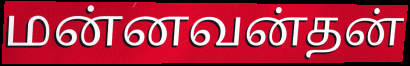
மன்னவன்தன்